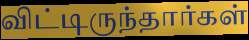
விட்டிருந்தார்கள்